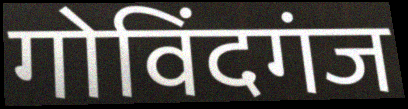
गोविंदगंज